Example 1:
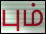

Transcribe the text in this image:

பும்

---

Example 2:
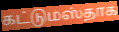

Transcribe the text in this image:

கட்டுமஸ்தாக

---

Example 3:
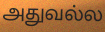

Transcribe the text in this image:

அதுவல்ல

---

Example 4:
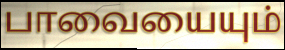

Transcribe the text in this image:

பாவையையும்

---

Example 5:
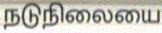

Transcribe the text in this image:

நடுநிலையை